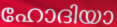
ഹോദിയാ